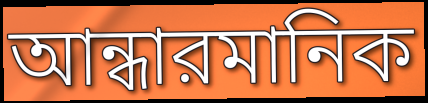
আন্ধারমানিক